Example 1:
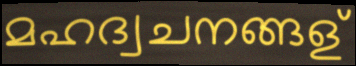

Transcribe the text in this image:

മഹദ്വചനങ്ങള്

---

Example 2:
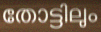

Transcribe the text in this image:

തോട്ടിലും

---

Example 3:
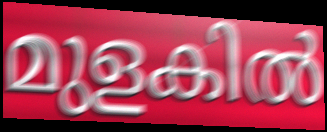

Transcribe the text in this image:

മുളകിൽ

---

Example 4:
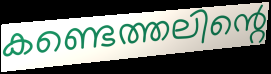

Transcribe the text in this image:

കണ്ടെത്തലിന്റെ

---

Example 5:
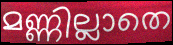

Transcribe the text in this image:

മണ്ണില്ലാതെ